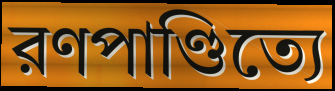
রণপাণ্ডিত্যে